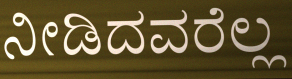
ನೀಡಿದವರೆಲ್ಲ